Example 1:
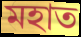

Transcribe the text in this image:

মহাত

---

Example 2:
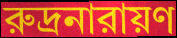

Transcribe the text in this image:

রুদ্রনারায়ণ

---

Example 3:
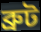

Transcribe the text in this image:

ব্রুট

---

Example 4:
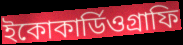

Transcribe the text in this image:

ইকোকার্ডিওগ্রাফি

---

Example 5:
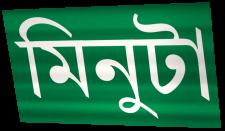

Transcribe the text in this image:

মিনুটা